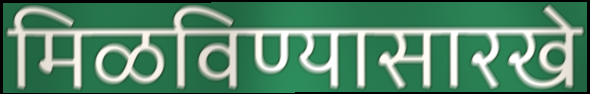
मिळविण्यासारखे